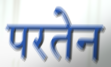
परतेन